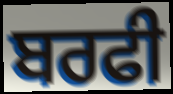
ਬਰਫੀ